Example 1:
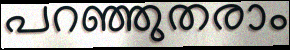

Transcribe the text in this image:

പറഞ്ഞുതരാം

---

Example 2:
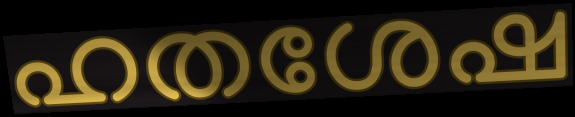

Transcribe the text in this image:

ഹതശേഷ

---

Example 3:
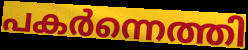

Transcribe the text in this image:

പകർന്നെത്തി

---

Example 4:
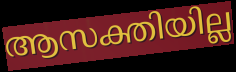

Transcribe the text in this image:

ആസക്തിയില്ല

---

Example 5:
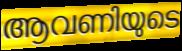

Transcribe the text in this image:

ആവണിയുടെ